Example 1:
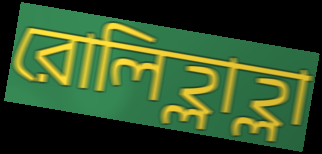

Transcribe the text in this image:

রোলিহ্লাহ্লা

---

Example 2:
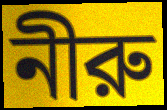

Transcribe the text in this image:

নীরু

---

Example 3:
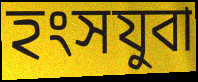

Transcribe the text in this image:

হংসযুবা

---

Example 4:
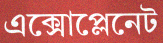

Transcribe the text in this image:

এক্সোপ্লেনেট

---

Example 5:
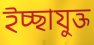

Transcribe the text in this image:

ইচ্ছাযুক্ত